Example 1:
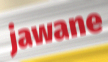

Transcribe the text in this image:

jawane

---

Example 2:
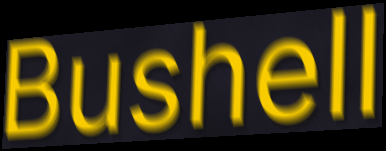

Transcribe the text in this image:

Bushell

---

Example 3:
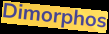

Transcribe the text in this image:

Dimorphos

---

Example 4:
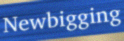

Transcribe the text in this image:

Newbigging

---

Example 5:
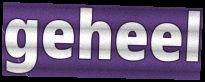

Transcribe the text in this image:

geheel